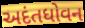
અદંતધોવન